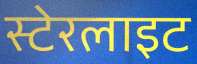
स्टेरलाइट